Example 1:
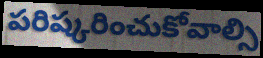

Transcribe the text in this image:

పరిష్కరించుకోవాల్సి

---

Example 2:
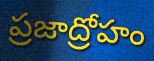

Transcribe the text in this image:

ప్రజాద్రోహం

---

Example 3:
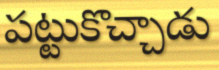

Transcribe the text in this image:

పట్టుకొచ్చాడు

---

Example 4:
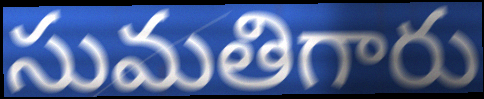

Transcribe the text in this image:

సుమతిగారు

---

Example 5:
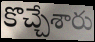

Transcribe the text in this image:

కొచ్చేశారు